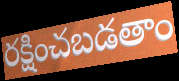
రక్షించబడతాం